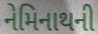
નેમિનાથની